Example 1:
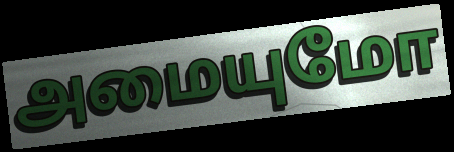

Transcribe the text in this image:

அமையுமோ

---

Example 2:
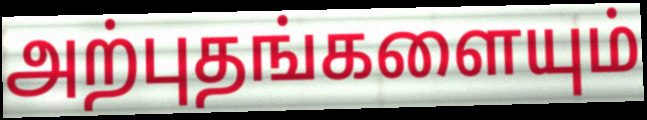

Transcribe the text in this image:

அற்புதங்களையும்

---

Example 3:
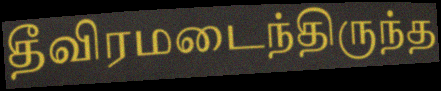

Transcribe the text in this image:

தீவிரமடைந்திருந்த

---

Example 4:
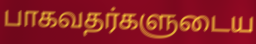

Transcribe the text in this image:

பாகவதர்களுடைய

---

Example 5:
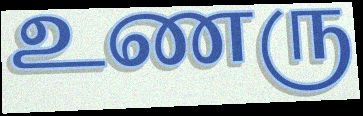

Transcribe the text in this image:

உணரு